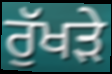
ਰੁੱਖੜੇ